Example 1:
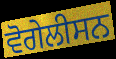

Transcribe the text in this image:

ਵੋਗੇਲੀਸਨ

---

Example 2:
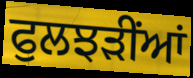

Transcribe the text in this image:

ਫੁਲਝੜੀਂਆਂ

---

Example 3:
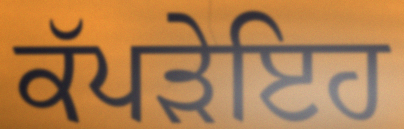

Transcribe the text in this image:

ਕੱਪੜੇਇਹ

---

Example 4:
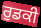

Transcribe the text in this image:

ਰੁਡਕੀ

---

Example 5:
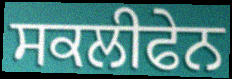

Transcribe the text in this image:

ਸਕਲੀਫੇਨ